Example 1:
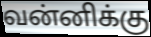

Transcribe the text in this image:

வன்னிக்கு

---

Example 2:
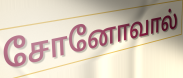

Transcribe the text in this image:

சோனோவால்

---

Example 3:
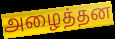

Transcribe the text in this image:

அழைத்தன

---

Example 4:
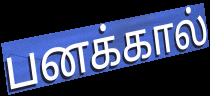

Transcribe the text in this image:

பனக்கால்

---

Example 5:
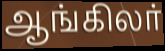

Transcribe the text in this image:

ஆங்கிலர்